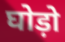
घोड़ो